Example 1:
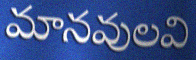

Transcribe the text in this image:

మానవులవి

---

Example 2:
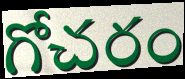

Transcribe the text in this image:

గోచరం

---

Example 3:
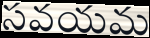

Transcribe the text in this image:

సవయమ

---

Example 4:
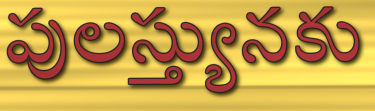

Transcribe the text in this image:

పులస్త్యునకు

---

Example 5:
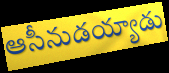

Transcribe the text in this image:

ఆసీనుడయ్యాడు